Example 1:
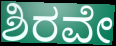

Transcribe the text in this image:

ಶಿರವೇ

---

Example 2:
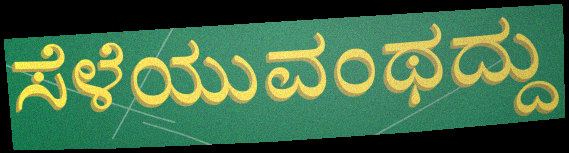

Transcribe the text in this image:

ಸೆಳೆಯುವಂಥದ್ದು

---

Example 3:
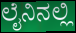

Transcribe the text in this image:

ಲೈನಿನಲ್ಲಿ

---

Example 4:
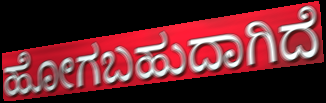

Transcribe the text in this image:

ಹೋಗಬಹುದಾಗಿದೆ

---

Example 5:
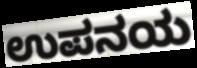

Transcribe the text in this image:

ಉಪನಯ